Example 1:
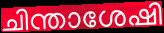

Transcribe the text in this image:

ചിന്താശേഷി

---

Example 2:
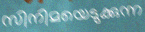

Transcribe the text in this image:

സിനിമയെടുക്കുന്ന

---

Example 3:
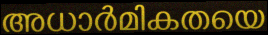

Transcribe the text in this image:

അധാർമികതയെ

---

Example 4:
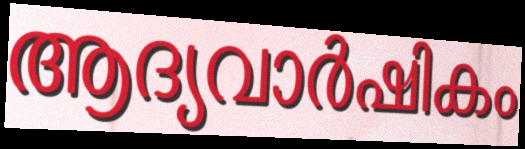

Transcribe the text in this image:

ആദ്യവാർഷികം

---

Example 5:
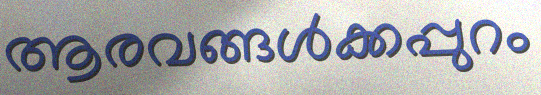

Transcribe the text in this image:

ആരവങ്ങൾക്കപ്പുറം